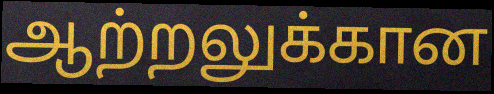
ஆற்றலுக்கான